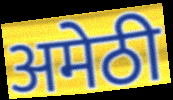
अमेठी